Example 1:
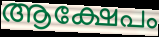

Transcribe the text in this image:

ആക്ഷേപം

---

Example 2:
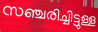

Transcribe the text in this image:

സഞ്ചരിച്ചിട്ടുള്ള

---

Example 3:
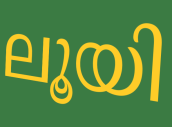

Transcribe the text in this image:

ലൂയി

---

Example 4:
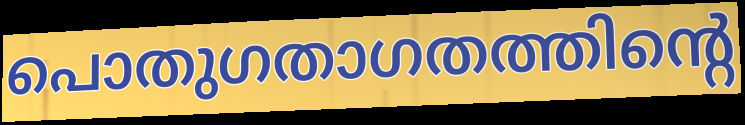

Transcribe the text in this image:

പൊതുഗതാഗതത്തിന്റെ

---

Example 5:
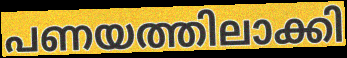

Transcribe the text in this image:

പണയത്തിലാക്കി